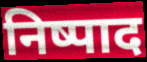
निष्पाद